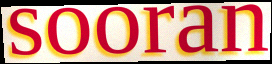
sooran